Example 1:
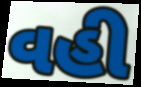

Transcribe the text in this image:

વહી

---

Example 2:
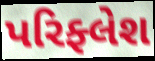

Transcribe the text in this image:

પરિફ્લેશ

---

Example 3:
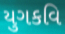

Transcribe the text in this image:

યુગકવિ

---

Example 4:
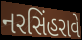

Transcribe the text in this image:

નરસિંહરાવે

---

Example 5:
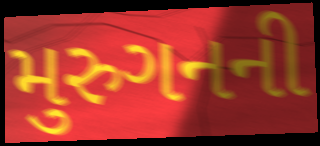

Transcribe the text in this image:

મુરુગનની